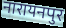
नारायनपुर